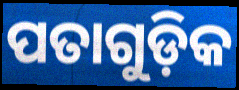
ପତାଗୁଡ଼ିକ